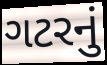
ગટરનું